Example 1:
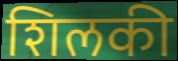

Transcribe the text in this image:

शिलकी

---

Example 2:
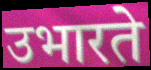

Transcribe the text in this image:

उभारते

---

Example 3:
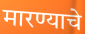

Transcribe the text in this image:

मारण्याचे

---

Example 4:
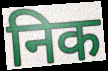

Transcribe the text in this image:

निक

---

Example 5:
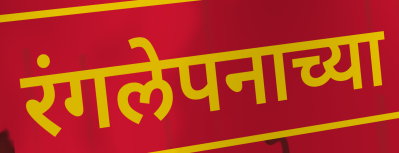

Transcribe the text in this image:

रंगलेपनाच्या